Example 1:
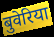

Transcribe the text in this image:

बुवेरिया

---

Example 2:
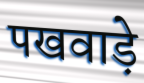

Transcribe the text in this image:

पखवाड़े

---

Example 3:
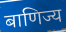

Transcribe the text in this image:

बाणिज्य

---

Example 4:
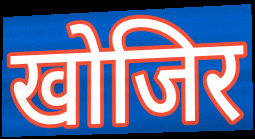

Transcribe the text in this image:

खोजिर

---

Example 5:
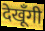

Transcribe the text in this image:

देखूँगी